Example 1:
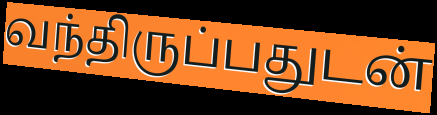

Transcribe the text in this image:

வந்திருப்பதுடன்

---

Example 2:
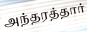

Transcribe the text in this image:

அந்தரத்தார்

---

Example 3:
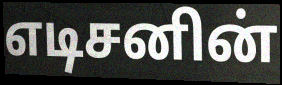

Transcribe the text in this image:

எடிசனின்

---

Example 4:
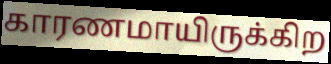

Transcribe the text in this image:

காரணமாயிருக்கிற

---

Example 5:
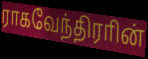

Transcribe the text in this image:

ராகவேந்திரரின்